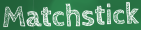
Matchstick